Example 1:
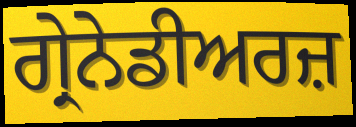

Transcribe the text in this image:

ਗ੍ਰੇਨੇਡੀਅਰਜ਼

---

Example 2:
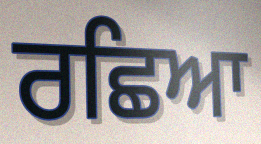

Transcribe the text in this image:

ਰਛਿਆ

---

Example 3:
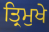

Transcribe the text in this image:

ਤ੍ਰਿਮੁਖੇ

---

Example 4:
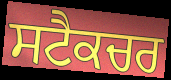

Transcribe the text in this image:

ਸਟੈਕਚਰ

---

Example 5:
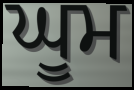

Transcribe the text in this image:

ਘੂਮ